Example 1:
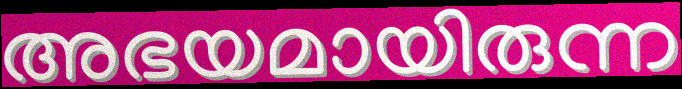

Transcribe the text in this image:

അഭയമായിരുന്ന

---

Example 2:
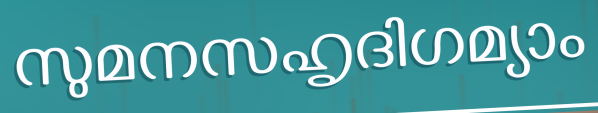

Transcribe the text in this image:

സുമനസഹൃദിഗമ്യാം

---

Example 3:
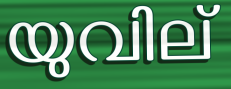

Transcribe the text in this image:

യുവില്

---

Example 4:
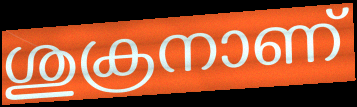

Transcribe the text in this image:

ശുക്രനാണ്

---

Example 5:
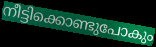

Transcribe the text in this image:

നീട്ടിക്കൊണ്ടുപോകും